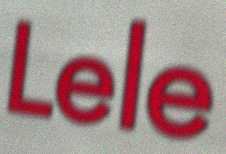
Lele